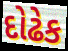
દોઢેક